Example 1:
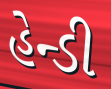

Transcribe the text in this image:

હેન્ડી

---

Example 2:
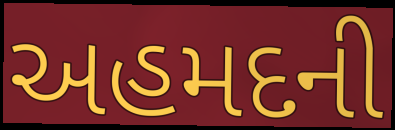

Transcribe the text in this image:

અહમદની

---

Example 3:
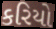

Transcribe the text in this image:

કરિયો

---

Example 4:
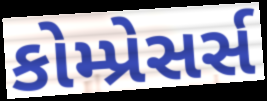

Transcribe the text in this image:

કોમ્પ્રેસર્સ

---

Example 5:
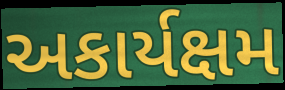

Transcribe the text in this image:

અકાર્યક્ષમ